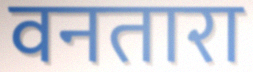
वनतारा